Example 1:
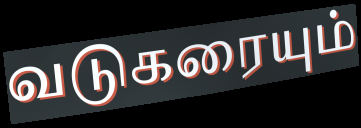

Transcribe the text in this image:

வடுகரையும்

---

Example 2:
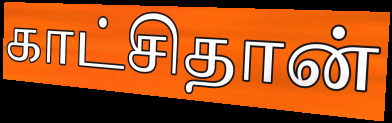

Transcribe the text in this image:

காட்சிதான்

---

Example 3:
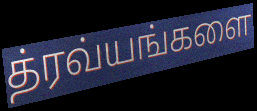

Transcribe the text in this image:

த்ரவ்யங்களை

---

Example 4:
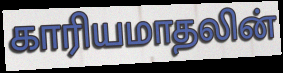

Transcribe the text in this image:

காரியமாதலின்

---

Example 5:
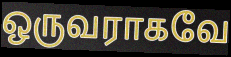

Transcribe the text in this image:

ஒருவராகவே